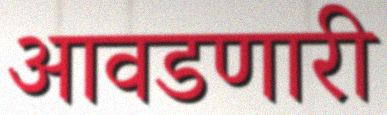
आवडणारी